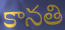
కానతి